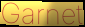
Garnet